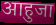
आहुजा